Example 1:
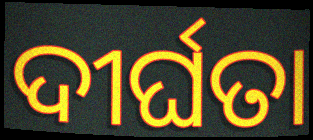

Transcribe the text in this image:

ଦୀର୍ଘତା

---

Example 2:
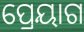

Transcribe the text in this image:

ପ୍ରେୟାଗ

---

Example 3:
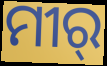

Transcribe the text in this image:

ମୀର୍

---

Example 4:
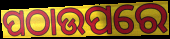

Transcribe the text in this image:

ପଠାଉପରେ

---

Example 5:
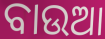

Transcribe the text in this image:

ବାଉଆ